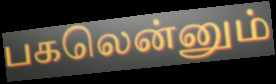
பகலென்னும்